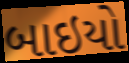
બાઇયો